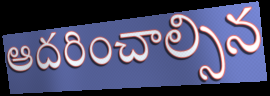
ఆదరించాల్సిన